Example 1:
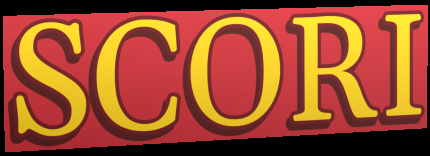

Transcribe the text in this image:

SCORI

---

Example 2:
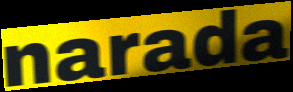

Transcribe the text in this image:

narada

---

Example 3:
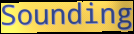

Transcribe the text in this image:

Sounding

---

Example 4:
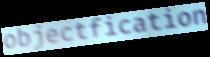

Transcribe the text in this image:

objectfication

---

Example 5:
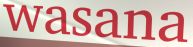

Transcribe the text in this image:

wasana